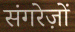
संगरेज़ों